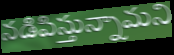
నడిపిస్తున్నామని